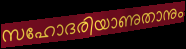
സഹോദരിയാണുതാനും